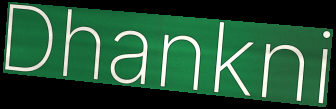
Dhankni